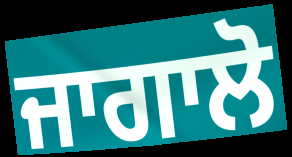
ਜਾਗਾਲੋ